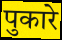
पुकारे